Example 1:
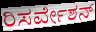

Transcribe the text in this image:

ರಿಸರ್ವೇಶನ್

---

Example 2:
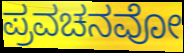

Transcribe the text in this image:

ಪ್ರವಚನವೋ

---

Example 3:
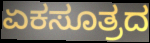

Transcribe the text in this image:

ಏಕಸೂತ್ರದ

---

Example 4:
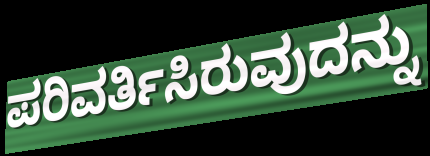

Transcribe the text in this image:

ಪರಿವರ್ತಿಸಿರುವುದನ್ನು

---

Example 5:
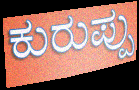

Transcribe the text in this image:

ಕುರುಪ್ಪು